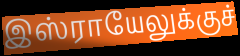
இஸ்ராயேலுக்குச்